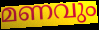
മണവും